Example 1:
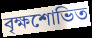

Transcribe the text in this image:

বৃক্ষশোভিত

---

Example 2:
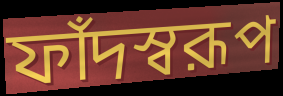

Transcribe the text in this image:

ফাঁদস্বরূপ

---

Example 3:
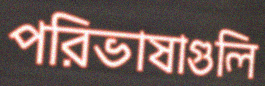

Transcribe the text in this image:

পরিভাষাগুলি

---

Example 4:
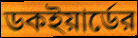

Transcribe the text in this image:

ডকইয়ার্ডের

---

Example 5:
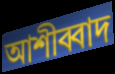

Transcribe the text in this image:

আশীব্বাদ